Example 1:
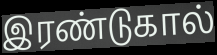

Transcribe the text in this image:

இரண்டுகால்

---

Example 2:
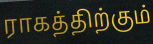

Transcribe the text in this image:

ராகத்திற்கும்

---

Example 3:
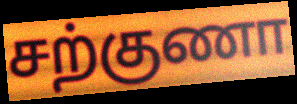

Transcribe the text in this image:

சற்குணா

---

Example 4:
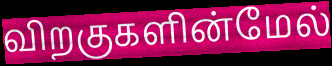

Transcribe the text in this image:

விறகுகளின்மேல்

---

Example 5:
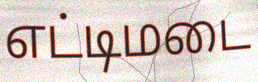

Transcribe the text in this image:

எட்டிமடை